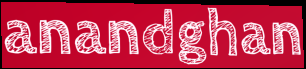
anandghan